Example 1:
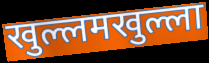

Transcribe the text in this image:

खुल्लमखुल्ला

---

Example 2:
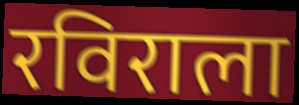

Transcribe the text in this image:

रविराला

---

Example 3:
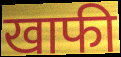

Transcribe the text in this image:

खाफी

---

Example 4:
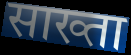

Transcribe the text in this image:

साख्ता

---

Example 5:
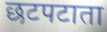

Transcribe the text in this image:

छटपटाता